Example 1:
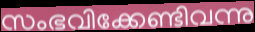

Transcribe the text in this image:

സംഭവിക്കേണ്ടിവന്നു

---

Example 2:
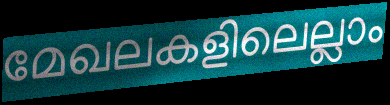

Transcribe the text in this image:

മേഖലകളിലെല്ലാം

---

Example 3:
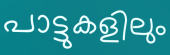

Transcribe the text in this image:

പാട്ടുകളിലും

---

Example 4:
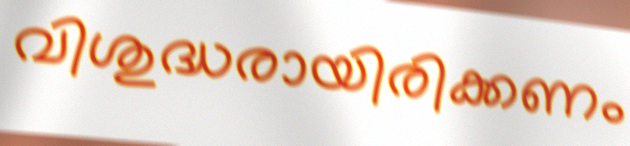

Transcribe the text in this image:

വിശുദ്ധരായിരിക്കണം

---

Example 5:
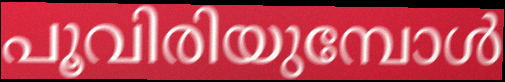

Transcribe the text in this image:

പൂവിരിയുമ്പോൾ